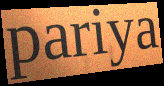
pariya